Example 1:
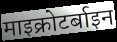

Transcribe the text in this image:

माइक्रोटर्बाइन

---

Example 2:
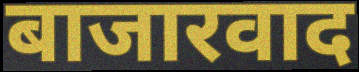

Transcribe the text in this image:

बाजारवाद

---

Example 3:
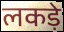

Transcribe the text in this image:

लकड़े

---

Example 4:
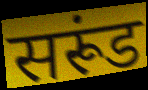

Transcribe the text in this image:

सरूंड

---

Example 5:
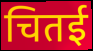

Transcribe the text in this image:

चितई